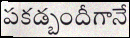
పకడ్బందీగానే